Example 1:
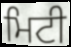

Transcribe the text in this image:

ਮਿਟੀ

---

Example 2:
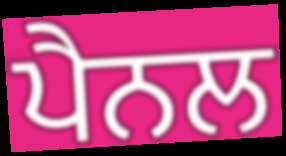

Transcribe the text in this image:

ਪੈਨਲ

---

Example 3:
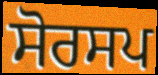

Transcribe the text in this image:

ਸੋਰਸਪ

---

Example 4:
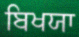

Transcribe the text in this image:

ਬਿਖਯਾ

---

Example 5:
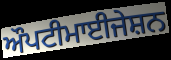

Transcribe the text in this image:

ਔਪਟੀਮਾਈਜੇਸ਼ਨ